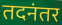
तदनंतर